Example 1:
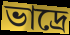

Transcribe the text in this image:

ভাদ্রে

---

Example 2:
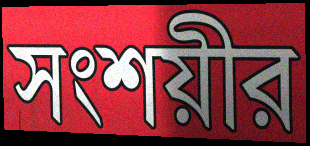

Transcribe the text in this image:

সংশয়ীর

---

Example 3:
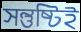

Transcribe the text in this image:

সন্তুষ্টিই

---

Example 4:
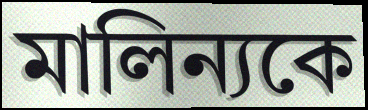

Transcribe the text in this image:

মালিন্যকে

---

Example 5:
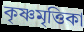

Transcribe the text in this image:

কৃষ্ণমৃত্তিকা